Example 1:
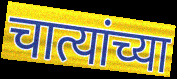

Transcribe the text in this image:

चात्यांच्या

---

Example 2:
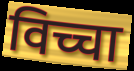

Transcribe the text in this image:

विच्चा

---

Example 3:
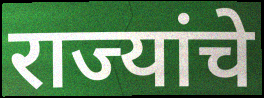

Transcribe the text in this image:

राज्यांचे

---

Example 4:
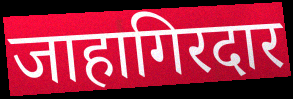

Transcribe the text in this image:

जाहागिरदार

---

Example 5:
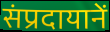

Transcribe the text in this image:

संप्रदायानें